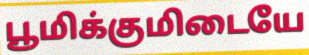
பூமிக்குமிடையே